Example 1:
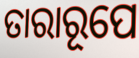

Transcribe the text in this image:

ତାରାରୂପେ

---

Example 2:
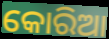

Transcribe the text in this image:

କୋରିଆ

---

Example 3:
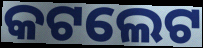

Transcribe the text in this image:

କଟଲେଟ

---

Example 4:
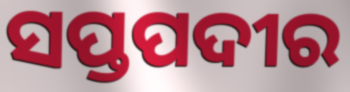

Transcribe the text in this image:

ସପ୍ତପଦୀର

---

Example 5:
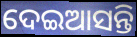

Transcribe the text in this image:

ଦେଇଆସନ୍ତି